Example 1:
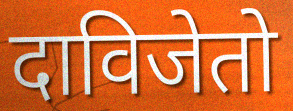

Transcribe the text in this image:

दाविजेतो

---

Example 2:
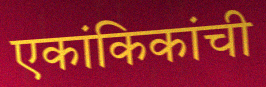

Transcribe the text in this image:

एकांकिकांची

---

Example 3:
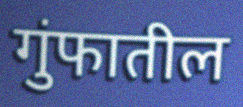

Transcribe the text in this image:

गुंफातील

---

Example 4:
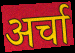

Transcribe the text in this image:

अर्चा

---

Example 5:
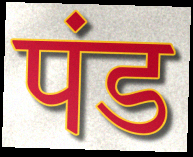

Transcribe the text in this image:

पंड